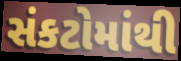
સંકટોમાંથી